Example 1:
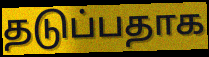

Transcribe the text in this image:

தடுப்பதாக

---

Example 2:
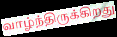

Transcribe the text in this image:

வாழ்ந்திருக்கிறது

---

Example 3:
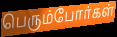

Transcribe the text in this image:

பெரும்போர்கள்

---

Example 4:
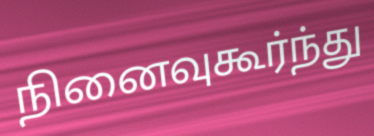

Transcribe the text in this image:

நினைவுகூர்ந்து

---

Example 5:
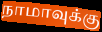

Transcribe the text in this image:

நாமாவுக்கு